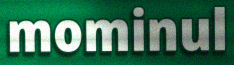
mominul